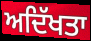
ਅਦਿੱਖਤਾ